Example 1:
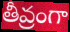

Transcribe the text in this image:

తీవ్రంగా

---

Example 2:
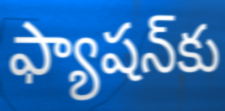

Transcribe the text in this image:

ఫ్యాషన్‌కు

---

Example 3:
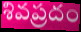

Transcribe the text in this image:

శివప్రదం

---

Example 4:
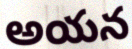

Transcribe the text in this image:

అయన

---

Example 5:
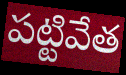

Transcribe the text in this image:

పట్టివేత